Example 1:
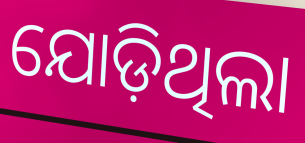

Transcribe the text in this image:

ଯୋଡ଼ିଥିଲା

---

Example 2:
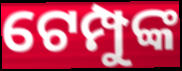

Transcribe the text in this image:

ଟେମ୍ପୁଙ୍କ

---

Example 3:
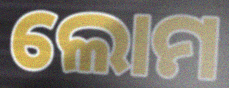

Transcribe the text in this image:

ଲୋମ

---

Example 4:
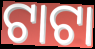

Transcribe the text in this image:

ଟାଟା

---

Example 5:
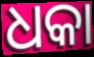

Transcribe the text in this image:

ଧକା